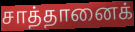
சாத்தானைக்